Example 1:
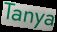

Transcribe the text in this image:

Tanya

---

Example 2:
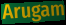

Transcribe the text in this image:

Arugam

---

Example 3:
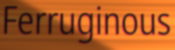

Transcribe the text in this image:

Ferruginous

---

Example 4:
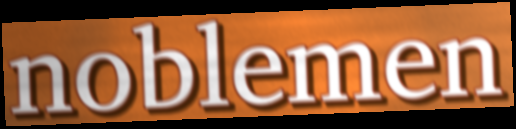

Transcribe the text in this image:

noblemen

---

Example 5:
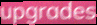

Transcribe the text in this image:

upgrades